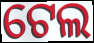
ଟେଲ